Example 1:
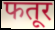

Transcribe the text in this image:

फतूर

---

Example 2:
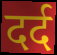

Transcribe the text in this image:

दर्द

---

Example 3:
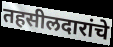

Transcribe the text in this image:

तहसीलदारांचे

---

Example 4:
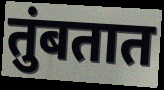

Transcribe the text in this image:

तुंबतात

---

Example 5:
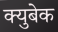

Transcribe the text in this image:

क्युबेक